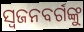
ସ୍ଵଜନବର୍ଗଙ୍କୁ